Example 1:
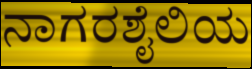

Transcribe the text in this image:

ನಾಗರಶೈಲಿಯ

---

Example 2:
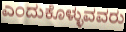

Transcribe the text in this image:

ಎಂದುಕೊಳ್ಳುವವರು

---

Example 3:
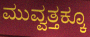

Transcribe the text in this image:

ಮುವ್ವತ್ತಕ್ಕೂ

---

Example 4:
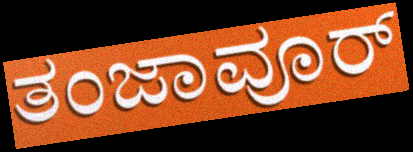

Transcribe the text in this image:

ತಂಜಾವೂರ್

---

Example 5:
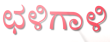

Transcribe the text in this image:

ಛಳಿಗಾಳಿ